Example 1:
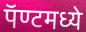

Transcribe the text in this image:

पॅण्टमध्ये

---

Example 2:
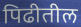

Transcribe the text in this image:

पिढीतील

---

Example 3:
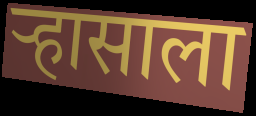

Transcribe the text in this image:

ऱ्हासाला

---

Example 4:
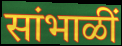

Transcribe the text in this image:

सांभाळीं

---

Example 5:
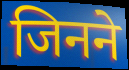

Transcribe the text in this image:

जिनने